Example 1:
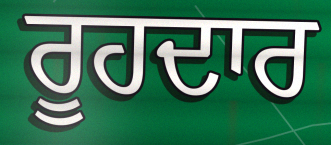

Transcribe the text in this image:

ਰੂਹਦਾਰ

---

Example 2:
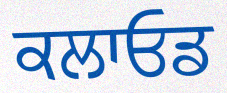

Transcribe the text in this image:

ਕਲਾਓਡ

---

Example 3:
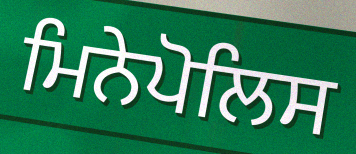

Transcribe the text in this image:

ਮਿਨੇਪੋਲਿਸ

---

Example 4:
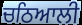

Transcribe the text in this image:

ਚਠਿਆਲੀ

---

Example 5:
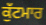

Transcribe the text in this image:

ਕੁੱਟਮਾਰ